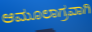
ಆಮೂಲಾಗ್ರವಾಗಿ